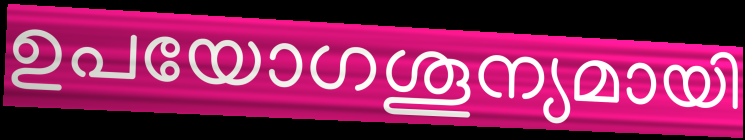
ഉപയോഗശൂന്യമായി